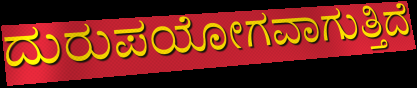
ದುರುಪಯೋಗವಾಗುತ್ತಿದೆ